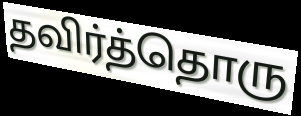
தவிர்த்தொரு